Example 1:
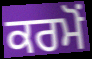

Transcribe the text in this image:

ਕਰਮੋਂ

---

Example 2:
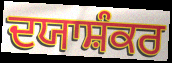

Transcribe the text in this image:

ਦਯਾਸ਼ੰਕਰ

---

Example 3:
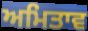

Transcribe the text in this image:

ਅਮਿਤਾਵ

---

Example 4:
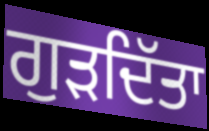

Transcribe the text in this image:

ਗੁੜਦਿੱਤਾ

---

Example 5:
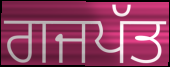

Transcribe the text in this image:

ਗਜਪੱਤ